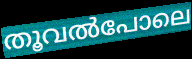
തൂവൽപോലെ